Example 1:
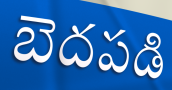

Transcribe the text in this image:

బెదపడి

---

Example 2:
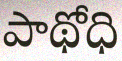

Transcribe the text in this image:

పాథోధి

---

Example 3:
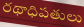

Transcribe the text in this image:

రథాధిపతులు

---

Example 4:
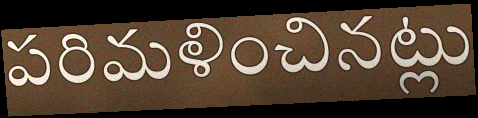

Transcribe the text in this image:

పరిమళించినట్లు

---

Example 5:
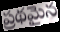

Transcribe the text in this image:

ప్రథమైన